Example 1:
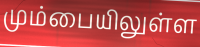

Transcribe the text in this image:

மும்பையிலுள்ள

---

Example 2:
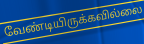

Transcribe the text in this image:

வேண்டியிருக்கவில்லை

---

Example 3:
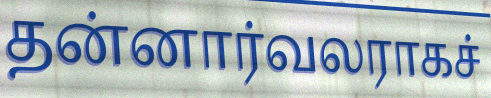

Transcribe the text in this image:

தன்னார்வலராகச்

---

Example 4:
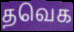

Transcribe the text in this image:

தவெக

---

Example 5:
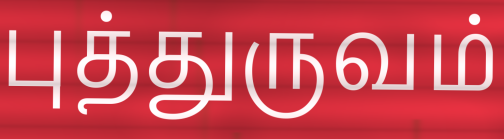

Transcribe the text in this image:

புத்துருவம்